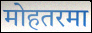
मोहतरमा